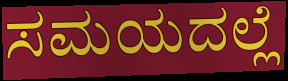
ಸಮಯದಲ್ಲೆ